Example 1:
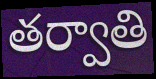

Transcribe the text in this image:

తర్వాతి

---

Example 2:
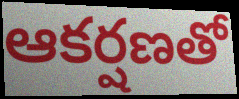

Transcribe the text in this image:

ఆకర్షణతో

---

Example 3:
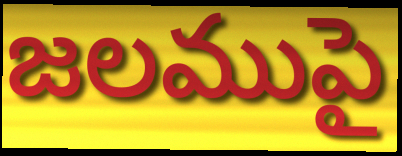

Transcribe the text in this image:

జలముపై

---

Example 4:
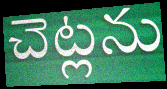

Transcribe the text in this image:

చెట్లను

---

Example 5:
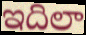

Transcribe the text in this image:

ఇదిలా